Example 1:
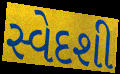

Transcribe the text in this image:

સ્વેદશી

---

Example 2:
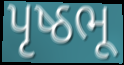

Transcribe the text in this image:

પૃષ્ઠભૂ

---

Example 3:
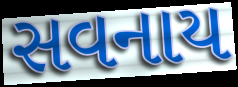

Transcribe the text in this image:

સવનાય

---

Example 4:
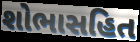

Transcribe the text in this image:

શોભાસહિત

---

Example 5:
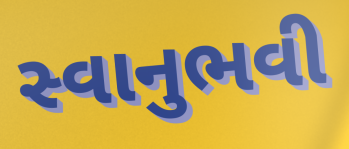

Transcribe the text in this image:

સ્વાનુભવી